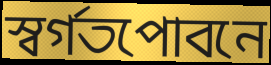
স্বর্গতপোবনে